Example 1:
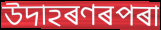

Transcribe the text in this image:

উদাহৰণৰপৰা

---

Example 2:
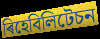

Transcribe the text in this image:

ৰিহেবিলিটেচন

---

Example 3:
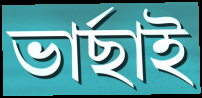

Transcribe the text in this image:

ভাৰ্ছাই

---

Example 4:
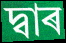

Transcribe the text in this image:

দ্বাৰ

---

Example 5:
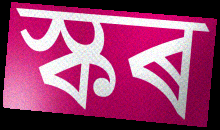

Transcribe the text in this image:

স্কৰ